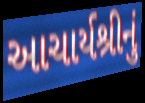
આચાર્યશ્રીનું